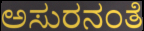
ಅಸುರನಂತೆ